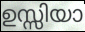
ഉസ്സിയാ